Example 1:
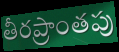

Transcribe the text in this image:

తీరప్రాంతపు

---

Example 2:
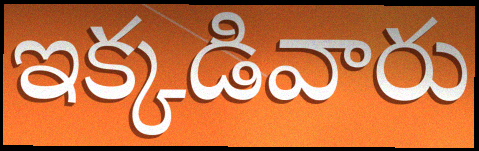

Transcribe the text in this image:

ఇక్కడివారు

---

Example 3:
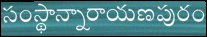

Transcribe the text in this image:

సంస్థాన్నారాయణపురం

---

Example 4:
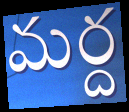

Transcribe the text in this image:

మర్ద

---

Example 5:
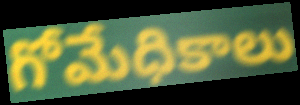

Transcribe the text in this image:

గోమేధికాలు